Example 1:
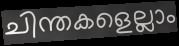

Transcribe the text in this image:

ചിന്തകളെല്ലാം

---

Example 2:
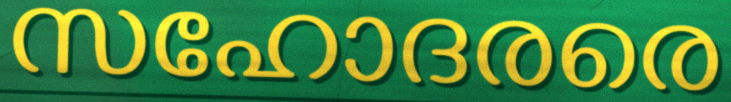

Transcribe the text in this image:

സഹോദരരെ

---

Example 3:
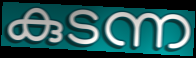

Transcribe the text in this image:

കുടന്ന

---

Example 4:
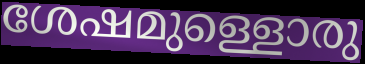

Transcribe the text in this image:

ശേഷമുള്ളൊരു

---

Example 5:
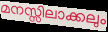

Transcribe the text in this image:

മനസ്സിലാക്കലും